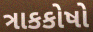
ત્રાકકોષો